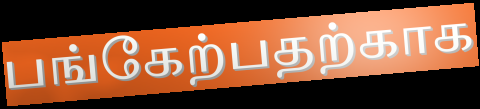
பங்கேற்பதற்காக